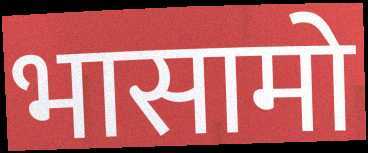
भासामो